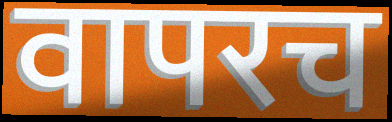
वापरच